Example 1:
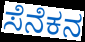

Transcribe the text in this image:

ಸೆನೆಕನ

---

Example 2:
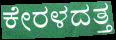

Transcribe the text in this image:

ಕೇರಳದತ್ತ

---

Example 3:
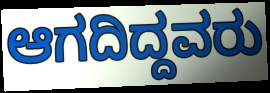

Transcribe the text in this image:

ಆಗದಿದ್ದವರು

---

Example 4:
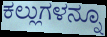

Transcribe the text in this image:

ಕಲ್ಲುಗಳನ್ನೂ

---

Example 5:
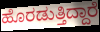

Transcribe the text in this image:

ಹೊರಡುತ್ತಿದ್ದಾರೆ